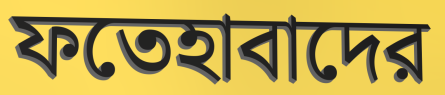
ফতেহাবাদের